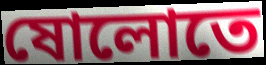
ষোলোতে